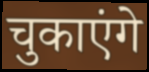
चुकाएंगे